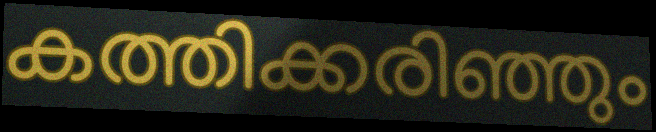
കത്തിക്കരിഞ്ഞും